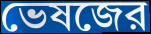
ভেষজের